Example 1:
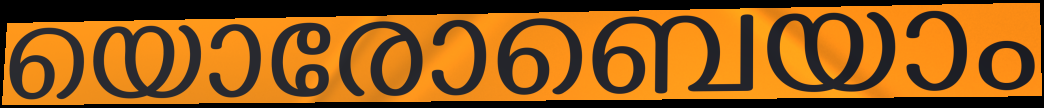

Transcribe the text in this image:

യൊരോബെയാം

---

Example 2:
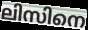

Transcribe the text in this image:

ലിസിനെ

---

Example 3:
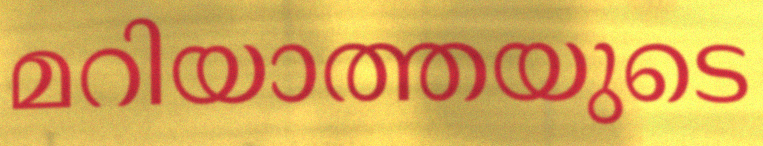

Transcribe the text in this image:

മറിയാത്തയുടെ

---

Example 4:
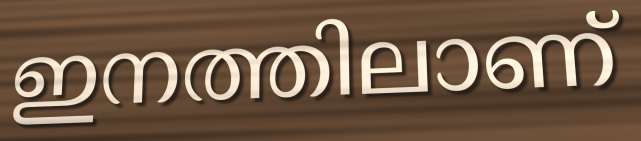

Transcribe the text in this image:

ഇനത്തിലാണ്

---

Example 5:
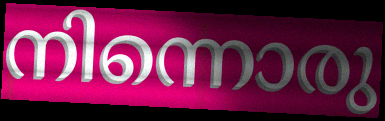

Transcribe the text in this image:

നിന്നൊരു